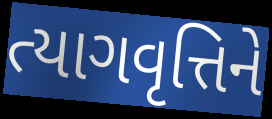
ત્યાગવૃત્તિને